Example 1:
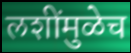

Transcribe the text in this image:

लशींमुळेच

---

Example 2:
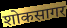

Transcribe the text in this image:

शोकसागर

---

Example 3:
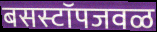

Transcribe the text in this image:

बसस्टॉपजवळ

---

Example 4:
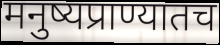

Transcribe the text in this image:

मनुष्यप्राण्यातच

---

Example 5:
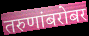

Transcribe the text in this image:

तरुणांबरोबर